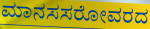
ಮಾನಸಸರೋವರದ